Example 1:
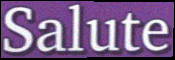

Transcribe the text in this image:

Salute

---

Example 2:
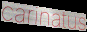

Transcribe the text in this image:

carinatus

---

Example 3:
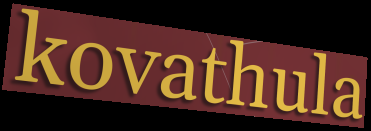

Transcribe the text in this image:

kovathula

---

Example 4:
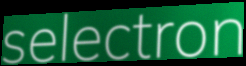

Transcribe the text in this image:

selectron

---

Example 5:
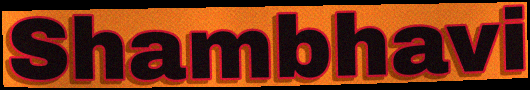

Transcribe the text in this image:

Shambhavi